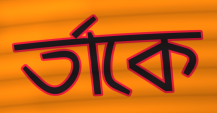
র্তাকে